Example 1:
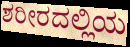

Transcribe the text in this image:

ಶರೀರದಲ್ಲಿಯ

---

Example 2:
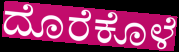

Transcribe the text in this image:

ದೊರೆಕೊಳೆ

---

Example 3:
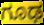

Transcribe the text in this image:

ಗೂಢ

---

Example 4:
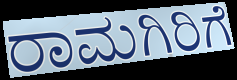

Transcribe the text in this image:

ರಾಮಗಿರಿಗೆ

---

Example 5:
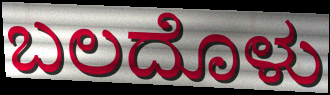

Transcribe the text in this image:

ಬಲದೊಳು